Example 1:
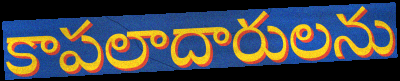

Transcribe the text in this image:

కాపలాదారులను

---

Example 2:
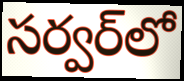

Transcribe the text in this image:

సర్వర్‌లో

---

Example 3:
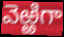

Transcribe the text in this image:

వెఱ్ఱిగా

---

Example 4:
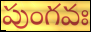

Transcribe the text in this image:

పుంగవః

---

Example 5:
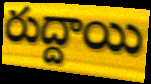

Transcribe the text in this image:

రుద్దాయి